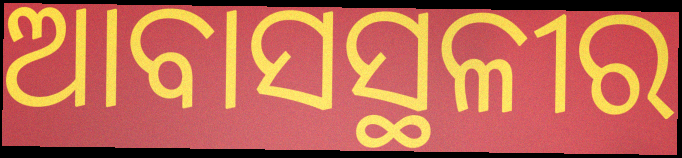
ଆବାସସ୍ଥଳୀର